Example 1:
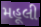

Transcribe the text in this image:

મહૂલી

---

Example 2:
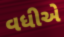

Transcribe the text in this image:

વધીએ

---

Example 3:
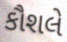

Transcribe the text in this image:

કૌશલે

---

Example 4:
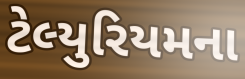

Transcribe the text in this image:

ટેલ્યુરિયમના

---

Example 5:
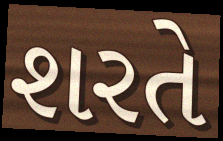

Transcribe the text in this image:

શરતે